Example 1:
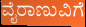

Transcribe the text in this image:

ವೈರಾಣುವಿಗೆ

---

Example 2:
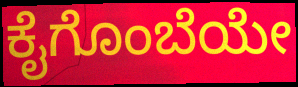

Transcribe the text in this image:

ಕೈಗೊಂಬೆಯೇ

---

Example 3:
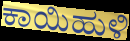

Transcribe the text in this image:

ಕಾಯಿಹುಳಿ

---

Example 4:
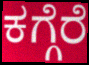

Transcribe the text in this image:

ಕಗ್ಗೆರೆ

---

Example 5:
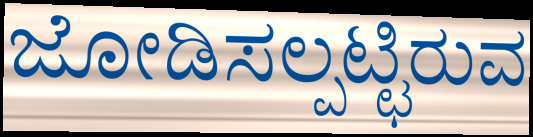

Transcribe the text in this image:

ಜೋಡಿಸಲ್ಪಟ್ಟಿರುವ